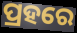
ପ୍ରହରେ